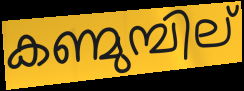
കണ്മുമ്പില്